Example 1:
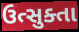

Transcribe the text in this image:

ઉત્સુક્તા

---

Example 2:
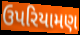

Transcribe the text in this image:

ઉપરિયામણ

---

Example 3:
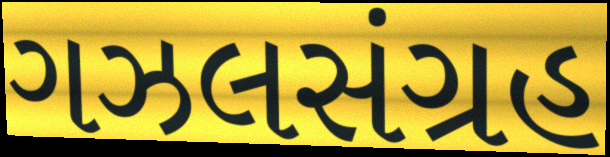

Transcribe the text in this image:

ગઝલસંગ્રહ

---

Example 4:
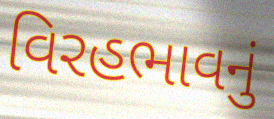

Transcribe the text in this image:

વિરહભાવનું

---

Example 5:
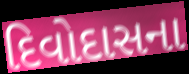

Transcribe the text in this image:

દિવોદાસના